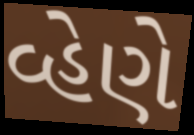
વ્હેણે